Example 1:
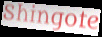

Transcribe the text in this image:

Shingote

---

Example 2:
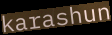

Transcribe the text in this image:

karashun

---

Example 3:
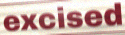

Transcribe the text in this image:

excised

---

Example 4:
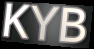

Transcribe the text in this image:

KYB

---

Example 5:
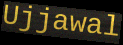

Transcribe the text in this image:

Ujjawal